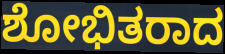
ಶೋಭಿತರಾದ